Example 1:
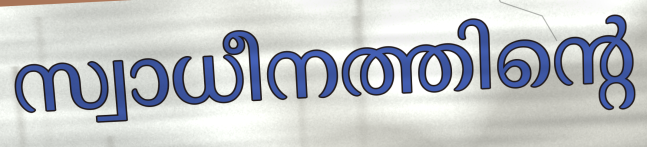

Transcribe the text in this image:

സ്വാധീനത്തിന്റെ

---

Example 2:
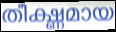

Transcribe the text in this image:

തീക്ഷ്ണമായ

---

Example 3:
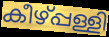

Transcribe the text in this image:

കീഴ്പ്പള്ളി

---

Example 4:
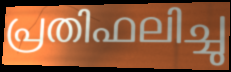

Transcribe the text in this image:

പ്രതിഫലിച്ചു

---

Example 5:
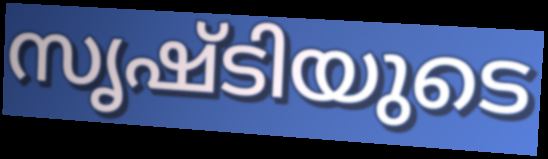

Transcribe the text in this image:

സൃഷ്ടിയുടെ